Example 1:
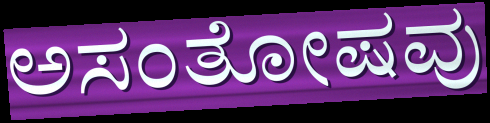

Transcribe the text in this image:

ಅಸಂತೋಷವು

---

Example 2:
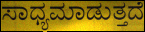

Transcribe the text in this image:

ಸಾಧ್ಯಮಾಡುತ್ತದೆ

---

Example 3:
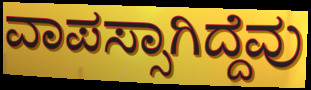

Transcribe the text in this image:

ವಾಪಸ್ಸಾಗಿದ್ದೆವು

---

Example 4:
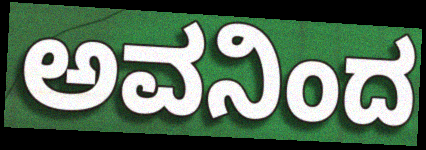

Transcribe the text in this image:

ಅವನಿಂದ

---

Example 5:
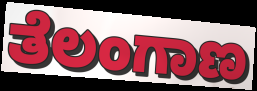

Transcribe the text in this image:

ತೆಲಂಗಾಣ